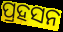
ପ୍ରହସନ